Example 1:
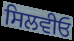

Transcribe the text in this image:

ਸਿਲਵੀਓ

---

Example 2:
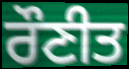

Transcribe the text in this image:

ਰੌਣੀਤ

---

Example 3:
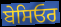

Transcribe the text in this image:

ਬੇਸਿਓਰ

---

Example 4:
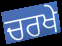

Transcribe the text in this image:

ਚਰਖੇ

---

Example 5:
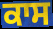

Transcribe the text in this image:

ਕਾਸ